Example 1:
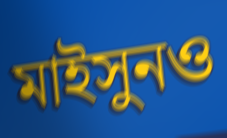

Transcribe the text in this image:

মাইসুনও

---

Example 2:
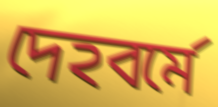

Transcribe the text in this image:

দেহবর্মে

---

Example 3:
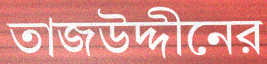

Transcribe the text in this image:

তাজউদ্দীনের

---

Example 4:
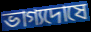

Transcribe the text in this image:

ভাগ্যদোষে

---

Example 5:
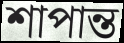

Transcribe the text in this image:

শাপান্ত